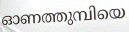
ഓണത്തുമ്പിയെ